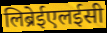
लिब्रेईएलईसी